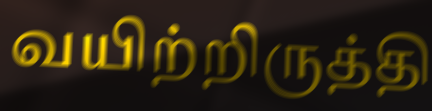
வயிற்றிருத்தி